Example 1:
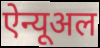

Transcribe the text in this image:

ऐन्यूअल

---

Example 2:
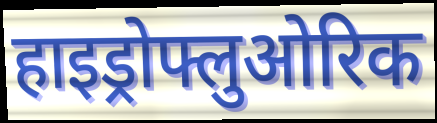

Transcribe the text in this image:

हाइड्रोफ्लुओरिक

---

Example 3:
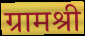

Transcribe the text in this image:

ग्रामश्री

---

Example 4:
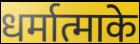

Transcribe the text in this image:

धर्मात्माके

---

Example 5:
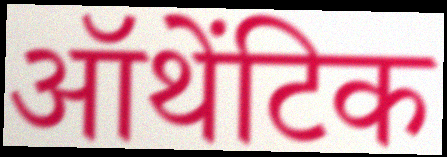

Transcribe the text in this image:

ऑथेंटिक